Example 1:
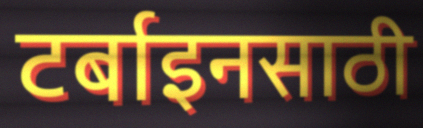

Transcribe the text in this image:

टर्बाइनसाठी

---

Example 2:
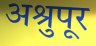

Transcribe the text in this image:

अश्रुपूर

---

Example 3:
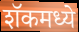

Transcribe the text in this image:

शॅकमध्ये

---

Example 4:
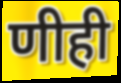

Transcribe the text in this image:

णीही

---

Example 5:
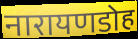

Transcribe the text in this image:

नारायणडोह